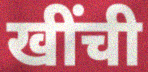
खींची